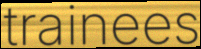
trainees